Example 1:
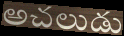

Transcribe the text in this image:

అచలుడు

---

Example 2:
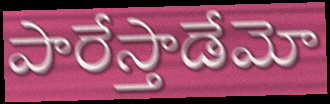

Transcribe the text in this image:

పారేస్తాడేమో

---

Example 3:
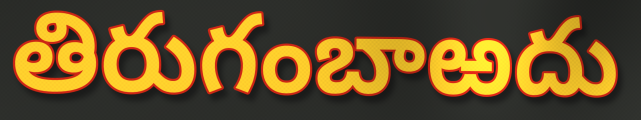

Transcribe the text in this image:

తిరుగంబాఱదు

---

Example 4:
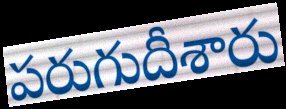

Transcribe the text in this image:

పరుగుదీశారు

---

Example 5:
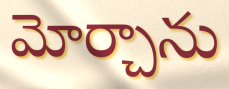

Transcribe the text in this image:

మోర్చాను